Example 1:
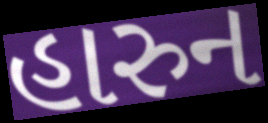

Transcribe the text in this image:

હારુન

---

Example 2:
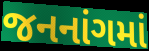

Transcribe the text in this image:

જનનાંગમાં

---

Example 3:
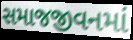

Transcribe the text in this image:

સમાજજીવનમાં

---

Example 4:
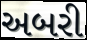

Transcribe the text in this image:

અબરી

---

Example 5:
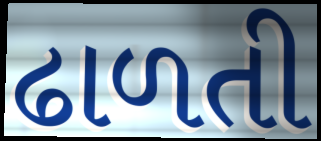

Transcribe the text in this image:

ઢાળતી